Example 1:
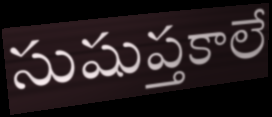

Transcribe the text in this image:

సుషుప్తకాలే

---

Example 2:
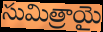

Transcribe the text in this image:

సుమిత్రాయై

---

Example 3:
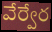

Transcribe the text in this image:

వేర్వేర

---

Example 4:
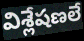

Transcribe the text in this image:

విశ్లేషణలే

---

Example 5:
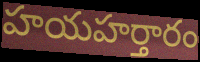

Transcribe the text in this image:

హయహర్తారం